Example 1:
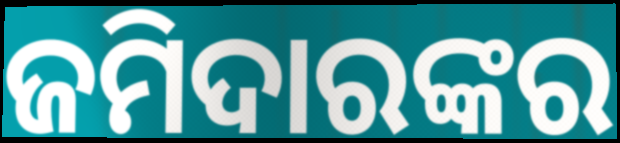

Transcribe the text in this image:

ଜମିଦାରଙ୍କର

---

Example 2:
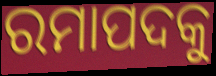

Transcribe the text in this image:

ରମାପଦକୁ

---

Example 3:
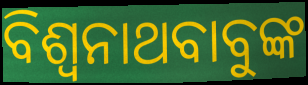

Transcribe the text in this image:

ବିଶ୍ୱନାଥବାବୁଙ୍କ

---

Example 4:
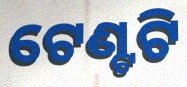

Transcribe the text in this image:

ଟେଣ୍ଟଟି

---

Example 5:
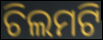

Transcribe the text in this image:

ଚିଲମଟି